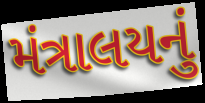
મંત્રાલયનું